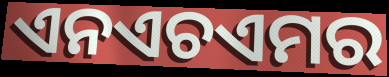
ଏନଏଚଏମର